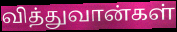
வித்துவான்கள்